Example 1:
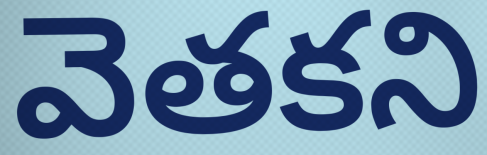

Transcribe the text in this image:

వెతకని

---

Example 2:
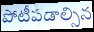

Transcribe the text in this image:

పోటీపడాల్సిన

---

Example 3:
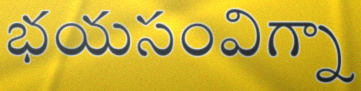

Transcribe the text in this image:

భయసంవిగ్నా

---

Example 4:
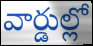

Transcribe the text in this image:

వార్డుల్లో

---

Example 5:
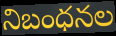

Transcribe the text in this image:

నిబంధనల